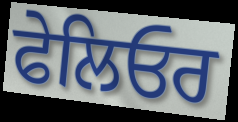
ਫੇਲਿਓਰ